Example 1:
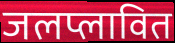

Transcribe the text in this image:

जलप्लावित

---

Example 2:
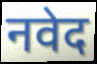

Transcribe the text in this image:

नवेद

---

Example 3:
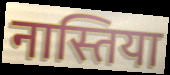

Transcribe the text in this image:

नास्तिया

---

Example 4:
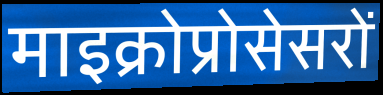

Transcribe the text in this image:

माइक्रोप्रोसेसरों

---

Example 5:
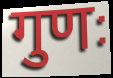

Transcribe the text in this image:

गुणः